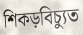
শিকড়বিচ্যুত